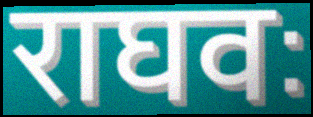
राघवः